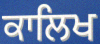
ਕਾਲਿਖ